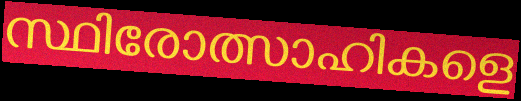
സ്ഥിരോത്സാഹികളെ